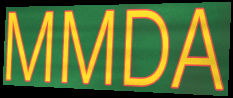
MMDA